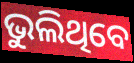
ଭୁଲିଥିବେ